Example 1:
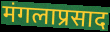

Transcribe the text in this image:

मंगलाप्रसाद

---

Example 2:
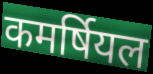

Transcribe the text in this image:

कमर्षियल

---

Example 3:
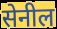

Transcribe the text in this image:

सेनील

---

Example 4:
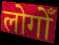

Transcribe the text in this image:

लोगोँ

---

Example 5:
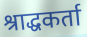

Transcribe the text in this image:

श्राद्धकर्ता